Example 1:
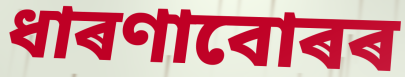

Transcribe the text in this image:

ধাৰণাবোৰৰ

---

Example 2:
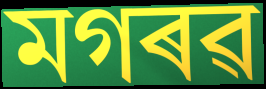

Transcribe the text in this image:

মগৰৱ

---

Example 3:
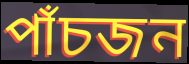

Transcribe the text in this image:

পাঁচজন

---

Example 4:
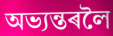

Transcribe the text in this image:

অভ্যন্তৰলৈ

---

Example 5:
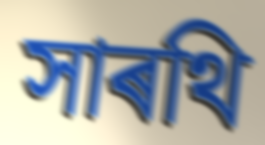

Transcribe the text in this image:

সাৰথি